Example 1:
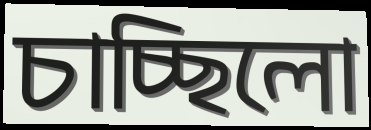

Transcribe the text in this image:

চাচ্ছিলো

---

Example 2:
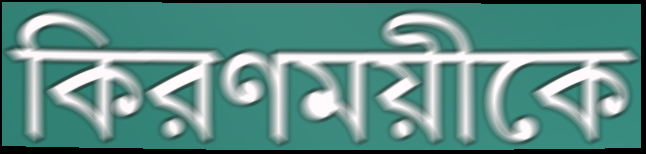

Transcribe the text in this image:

কিরণময়ীকে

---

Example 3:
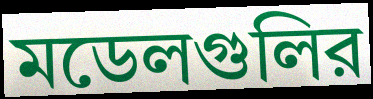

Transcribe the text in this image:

মডেলগুলির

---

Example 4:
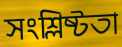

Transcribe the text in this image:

সংশ্লিষ্টতা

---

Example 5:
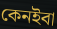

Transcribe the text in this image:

কেনইবা